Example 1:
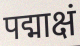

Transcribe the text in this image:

पद्माक्षं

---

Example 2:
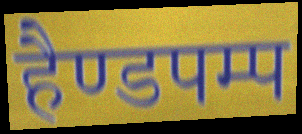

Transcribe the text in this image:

हैण्डपम्प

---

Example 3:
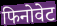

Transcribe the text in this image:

फिनोवेट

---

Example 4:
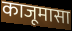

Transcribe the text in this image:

काजूमासा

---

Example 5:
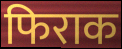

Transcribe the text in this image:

फिराक